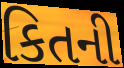
કિતની